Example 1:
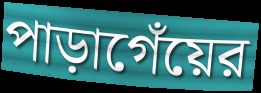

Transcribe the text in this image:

পাড়াগেঁয়ের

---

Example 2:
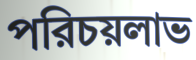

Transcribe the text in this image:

পরিচয়লাভ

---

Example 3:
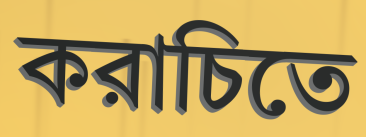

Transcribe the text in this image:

করাচিতে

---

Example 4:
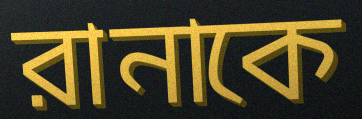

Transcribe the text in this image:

রানাকে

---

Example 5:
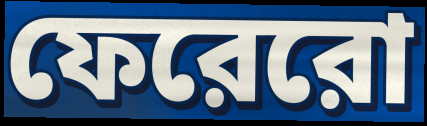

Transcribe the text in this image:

ফেরেরো